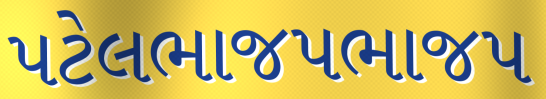
પટેલભાજપભાજપ